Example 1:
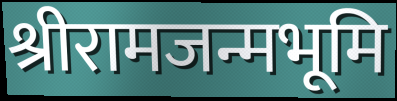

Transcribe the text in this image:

श्रीरामजन्मभूमि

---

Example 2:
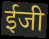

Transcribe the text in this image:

ईजी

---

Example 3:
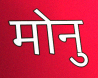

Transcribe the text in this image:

मोनु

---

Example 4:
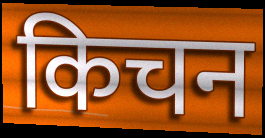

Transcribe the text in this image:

किचन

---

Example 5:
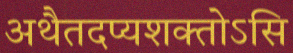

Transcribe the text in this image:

अथैतदप्यशक्तोऽसि